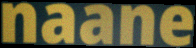
naane